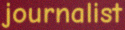
journalist